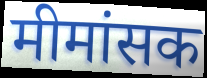
मीमांसक